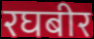
रघबीर